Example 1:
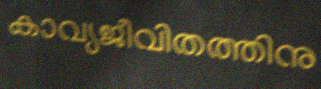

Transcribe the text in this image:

കാവ്യജീവിതത്തിനു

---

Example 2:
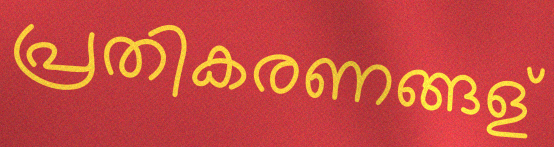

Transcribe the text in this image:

പ്രതികരണങ്ങള്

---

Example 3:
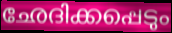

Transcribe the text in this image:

ഛേദിക്കപ്പെടും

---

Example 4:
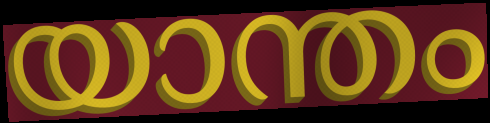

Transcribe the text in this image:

യാന്തം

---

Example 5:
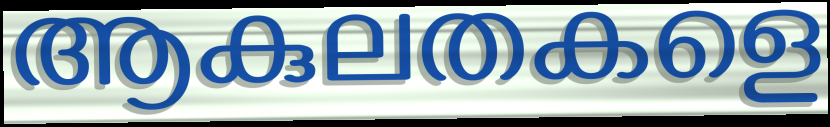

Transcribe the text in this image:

ആകുലതകളെ